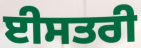
ਈਸਤਰੀ